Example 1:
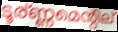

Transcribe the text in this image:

ടൂര്ണ്ണമെന്റില്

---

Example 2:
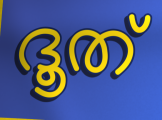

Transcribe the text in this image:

ദൂത്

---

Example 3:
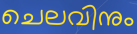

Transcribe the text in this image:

ചെലവിനും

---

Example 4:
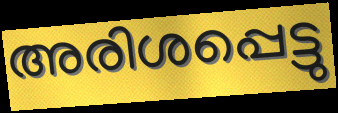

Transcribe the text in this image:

അരിശപ്പെട്ടു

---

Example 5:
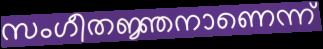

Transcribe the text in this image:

സംഗീതജ്ഞനാണെന്ന്